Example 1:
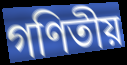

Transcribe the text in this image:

গণিতীয়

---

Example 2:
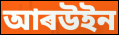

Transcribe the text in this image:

আৰউইন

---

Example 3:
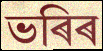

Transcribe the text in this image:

ভৰিৰ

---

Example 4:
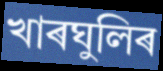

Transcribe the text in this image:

খাৰঘুলিৰ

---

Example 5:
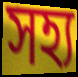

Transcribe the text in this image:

সহ্য